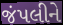
જંપલીને